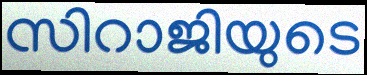
സിറാജിയുടെ